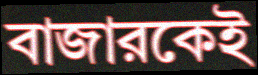
বাজারকেই